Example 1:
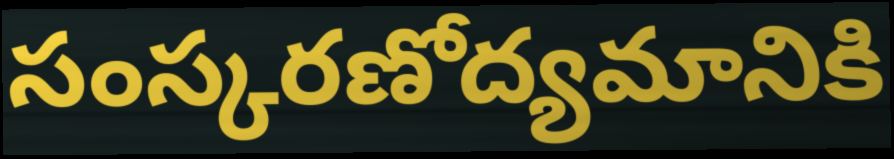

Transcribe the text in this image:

సంస్కరణోద్యమానికి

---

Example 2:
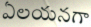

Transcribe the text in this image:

ఏలయనగా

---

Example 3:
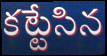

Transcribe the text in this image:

కట్టేసిన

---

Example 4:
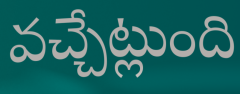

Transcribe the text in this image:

వచ్చేట్లుంది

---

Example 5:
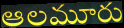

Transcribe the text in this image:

ఆలమూరు